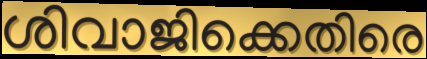
ശിവാജിക്കെതിരെ